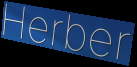
Herber